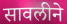
सावलीने